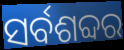
ସର୍ବଶବ୍ଦର